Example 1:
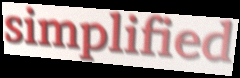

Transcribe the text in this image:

simplified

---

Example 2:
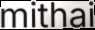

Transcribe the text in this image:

mithai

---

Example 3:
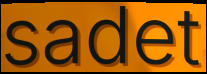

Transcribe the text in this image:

sadet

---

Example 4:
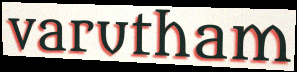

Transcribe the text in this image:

varutham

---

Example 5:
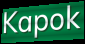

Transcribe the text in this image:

Kapok